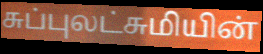
சுப்புலட்சுமியின்